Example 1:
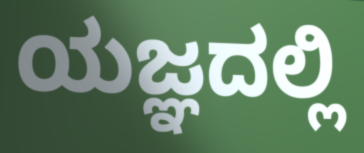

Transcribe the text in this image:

ಯಜ್ಞದಲ್ಲಿ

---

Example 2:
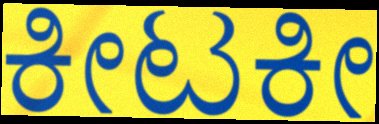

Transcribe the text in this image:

ಕೀಟಕೀ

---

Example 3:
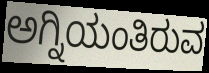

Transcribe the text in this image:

ಅಗ್ನಿಯಂತಿರುವ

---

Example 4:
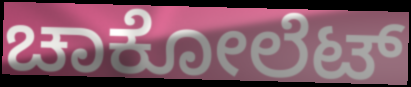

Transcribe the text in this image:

ಚಾಕೋಲೆಟ್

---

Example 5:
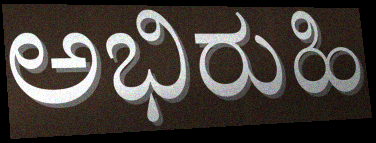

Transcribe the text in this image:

ಅಭಿರುಹಿ